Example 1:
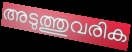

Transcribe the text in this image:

അടുത്തുവരിക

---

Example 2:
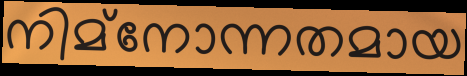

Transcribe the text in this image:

നിമ്നോന്നതമായ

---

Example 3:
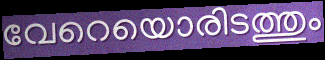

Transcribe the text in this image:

വേറെയൊരിടത്തും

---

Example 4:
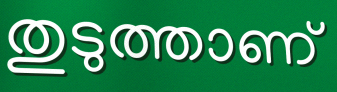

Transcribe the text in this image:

തുടുത്താണ്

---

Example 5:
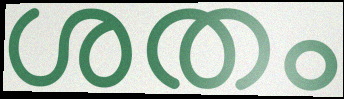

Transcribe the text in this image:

ശതം